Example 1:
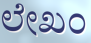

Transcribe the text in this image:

ಲೇಖಂ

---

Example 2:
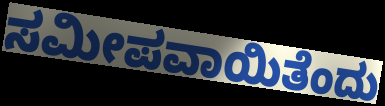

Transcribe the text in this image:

ಸಮೀಪವಾಯಿತೆಂದು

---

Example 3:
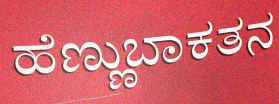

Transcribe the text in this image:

ಹೆಣ್ಣುಬಾಕತನ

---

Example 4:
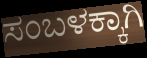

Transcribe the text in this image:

ಸಂಬಳಕ್ಕಾಗಿ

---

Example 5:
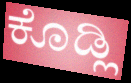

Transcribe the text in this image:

ಕೊಡ್ಲಿ